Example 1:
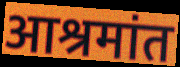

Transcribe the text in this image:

आश्रमांत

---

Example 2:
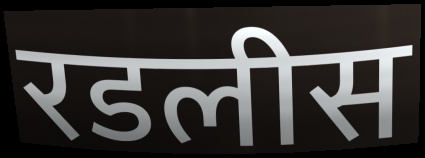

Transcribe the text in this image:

रडलीस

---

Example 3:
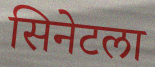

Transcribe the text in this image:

सिनेटला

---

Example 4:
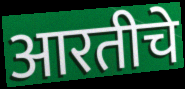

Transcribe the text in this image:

आरतीचे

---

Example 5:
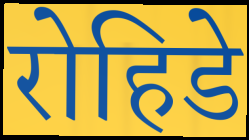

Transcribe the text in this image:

रोहिडे